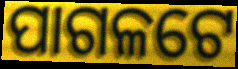
ପାଗଳଟେ